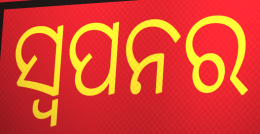
ସ୍ଵପନର